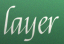
layer